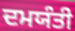
ਦਮਯੰਤੀ